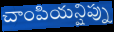
చాంపియన్షిప్ను